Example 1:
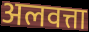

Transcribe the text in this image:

अलवत्ता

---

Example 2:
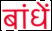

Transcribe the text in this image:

बांधें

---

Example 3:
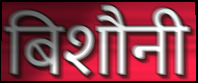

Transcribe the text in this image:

बिशौनी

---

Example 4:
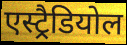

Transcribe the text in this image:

एस्ट्रैडियोल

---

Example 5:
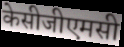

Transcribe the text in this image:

केसीजीएमसी